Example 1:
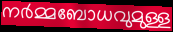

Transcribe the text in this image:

നർമ്മബോധവുമുള്ള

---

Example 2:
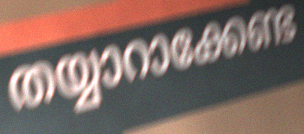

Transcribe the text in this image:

തയ്യാറാക്കേണ്ട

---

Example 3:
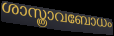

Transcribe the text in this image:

ശാസ്ത്രാവബോധം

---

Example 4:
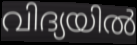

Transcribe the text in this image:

വിദ്യയിൽ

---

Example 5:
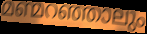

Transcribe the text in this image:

മണ്മറഞ്ഞാലും